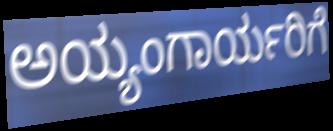
ಅಯ್ಯಂಗಾರ್ಯರಿಗೆ